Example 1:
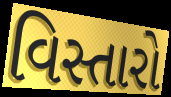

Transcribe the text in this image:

વિસ્તારો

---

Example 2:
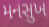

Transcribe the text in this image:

મનસુખ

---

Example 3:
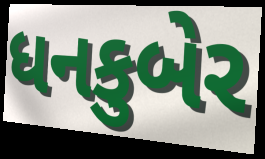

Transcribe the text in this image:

ધનકુબેર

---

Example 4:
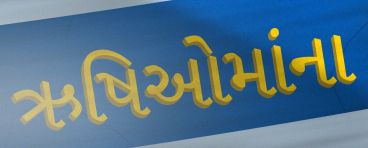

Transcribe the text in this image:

ઋષિઓમાંના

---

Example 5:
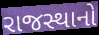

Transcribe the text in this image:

રાજસ્થાનો